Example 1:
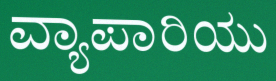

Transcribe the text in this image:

ವ್ಯಾಪಾರಿಯು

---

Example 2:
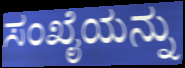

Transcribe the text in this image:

ಸಂಖೈಯನ್ನು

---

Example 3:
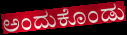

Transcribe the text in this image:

ಅಂದುಕೊಂಡು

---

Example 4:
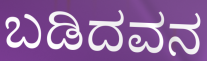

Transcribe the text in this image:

ಬಡಿದವನ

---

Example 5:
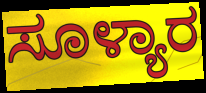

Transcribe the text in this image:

ಸೂಳ್ಯಾರ